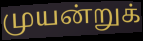
முயன்றுக்